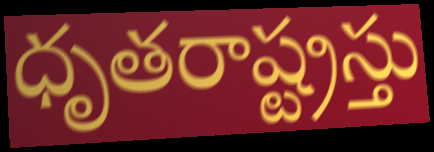
ధృతరాష్ట్రస్తు